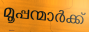
മൂപ്പന്മാർക്ക്